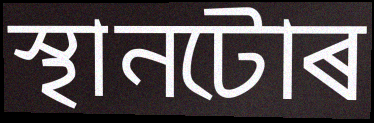
স্থানটোৰ